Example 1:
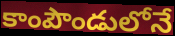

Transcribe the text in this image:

కాంపౌండులోనే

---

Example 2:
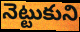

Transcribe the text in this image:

నెట్టుకుని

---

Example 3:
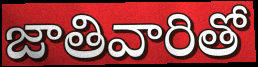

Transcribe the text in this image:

జాతివారితో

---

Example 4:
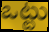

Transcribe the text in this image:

ఒట్టు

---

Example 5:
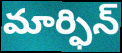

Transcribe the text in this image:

మార్ఫిన్